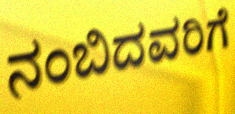
ನಂಬಿದವರಿಗೆ